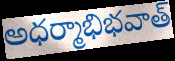
అధర్మాభిభవాత్